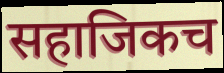
सहाजिकच